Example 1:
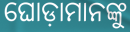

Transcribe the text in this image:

ଘୋଡ଼ାମାନଙ୍କୁ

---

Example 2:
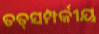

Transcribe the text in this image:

ତତ୍‍ସମ୍ପର୍କୀୟ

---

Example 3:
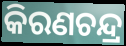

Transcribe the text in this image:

କିରଣଚନ୍ଦ୍ର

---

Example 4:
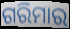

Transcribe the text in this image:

ଗରିମାର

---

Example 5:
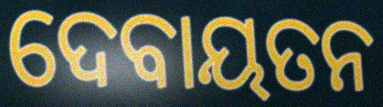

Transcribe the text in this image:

ଦେବାୟତନ